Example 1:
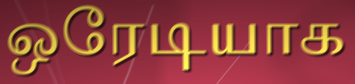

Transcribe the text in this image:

ஒரேடியாக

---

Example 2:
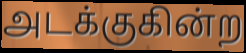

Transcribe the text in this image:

அடக்குகின்ற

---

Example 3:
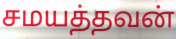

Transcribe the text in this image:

சமயத்தவன்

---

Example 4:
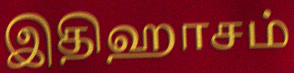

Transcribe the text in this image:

இதிஹாசம்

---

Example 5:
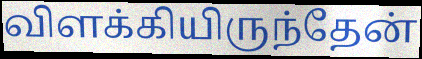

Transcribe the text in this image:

விளக்கியிருந்தேன்